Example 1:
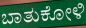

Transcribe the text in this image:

ಬಾತುಕೋಳಿ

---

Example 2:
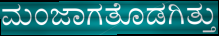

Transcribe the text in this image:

ಮಂಜಾಗತೊಡಗಿತ್ತು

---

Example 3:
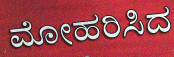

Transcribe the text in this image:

ಮೋಹರಿಸಿದ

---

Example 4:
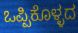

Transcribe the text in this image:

ಒಪ್ಪಿಕೊಳ್ಳದ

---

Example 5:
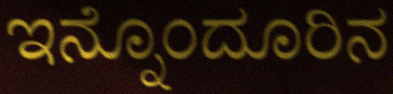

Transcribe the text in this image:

ಇನ್ನೊಂದೂರಿನ